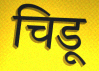
चिडू